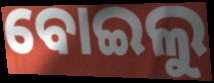
ବୋଇଲୁ